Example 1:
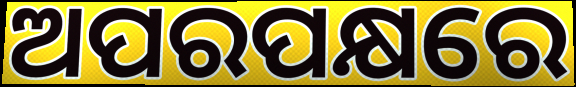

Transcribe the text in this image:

ଅପରପକ୍ଷରେ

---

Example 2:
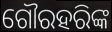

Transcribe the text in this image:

ଗୌରହରିଙ୍କ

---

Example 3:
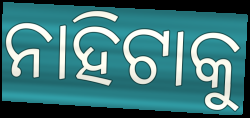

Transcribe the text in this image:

ନାହିଟାକୁ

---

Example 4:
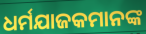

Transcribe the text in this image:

ଧର୍ମଯାଜକମାନଙ୍କ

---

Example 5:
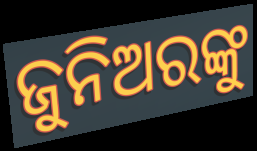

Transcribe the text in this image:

ଜୁନିଅରଙ୍କୁ